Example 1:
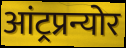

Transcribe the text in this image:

आंट्रप्रन्योर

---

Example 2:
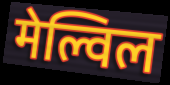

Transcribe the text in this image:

मेल्विल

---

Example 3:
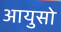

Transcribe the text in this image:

आयुसो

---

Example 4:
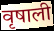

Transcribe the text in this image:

वृषाली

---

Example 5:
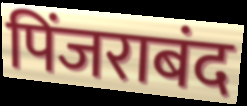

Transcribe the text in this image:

पिंजराबंद